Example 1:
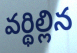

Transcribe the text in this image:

వర్థిల్లిన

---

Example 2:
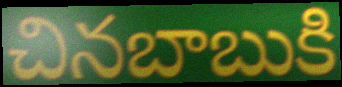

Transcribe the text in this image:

చినబాబుకి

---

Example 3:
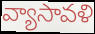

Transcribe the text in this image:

వ్యాసావళి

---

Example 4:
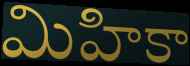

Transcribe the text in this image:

మిహికా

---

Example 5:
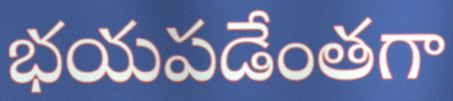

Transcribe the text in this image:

భయపడేంతగా